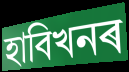
হাবিখনৰ